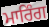
ਮਾਰਿੰਗ